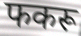
फकरू